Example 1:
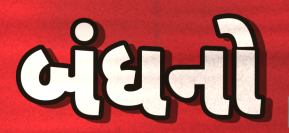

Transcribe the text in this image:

બંધનો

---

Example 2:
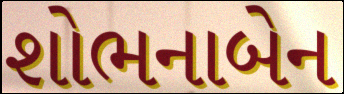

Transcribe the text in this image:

શોભનાબેન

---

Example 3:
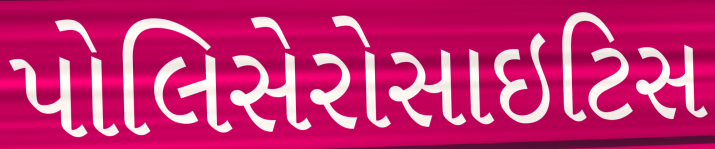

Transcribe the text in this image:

પોલિસેરોસાઇટિસ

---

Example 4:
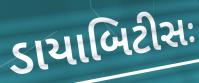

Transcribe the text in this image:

ડાયાબિટીસઃ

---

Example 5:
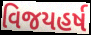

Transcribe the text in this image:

વિજયહર્ષ